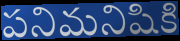
పనిమనిషికి